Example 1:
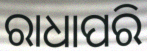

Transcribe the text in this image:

ରାଧାପରି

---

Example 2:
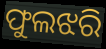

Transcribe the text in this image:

ଫୁଲଝରି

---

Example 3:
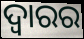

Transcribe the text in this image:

ଦ୍ୱାରର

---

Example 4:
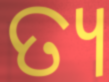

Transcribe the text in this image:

ତ୍ୟ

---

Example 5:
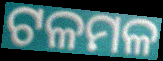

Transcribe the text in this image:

ଟଳମଳ